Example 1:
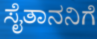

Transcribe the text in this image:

ಸೈತಾನನಿಗೆ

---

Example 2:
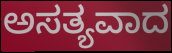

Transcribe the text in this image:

ಅಸತ್ಯವಾದ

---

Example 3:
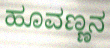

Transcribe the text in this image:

ಹೂವಣ್ಣನ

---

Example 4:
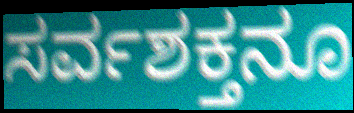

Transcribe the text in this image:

ಸರ್ವಶಕ್ತನೂ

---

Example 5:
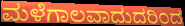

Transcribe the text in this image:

ಮಳೆಗಾಲವಾದುದರಿಂದ